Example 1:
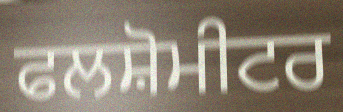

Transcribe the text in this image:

ਫਲਸ਼ੋਮੀਟਰ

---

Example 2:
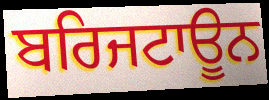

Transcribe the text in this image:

ਬਰਿਜਟਾਊਨ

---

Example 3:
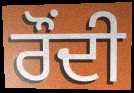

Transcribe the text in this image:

ਰੌਂਦੀ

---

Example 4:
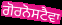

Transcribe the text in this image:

ਗੋਰਨੋਸਟੈਵਾ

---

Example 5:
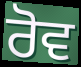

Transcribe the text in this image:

ਰੋਵ